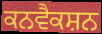
ਕਨਵੈਕਸ਼ਨ